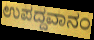
ಉಪದ್ದವಾನಂ